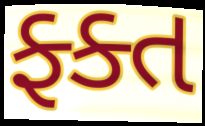
ફ્ક્ત